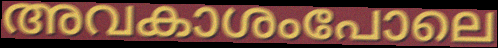
അവകാശംപോലെ